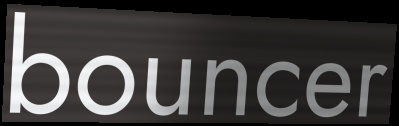
bouncer